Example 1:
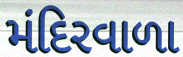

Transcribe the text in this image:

મંદિરવાળા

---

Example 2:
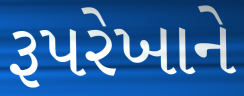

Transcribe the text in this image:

રૂપરેખાને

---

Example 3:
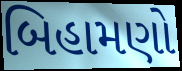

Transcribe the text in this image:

બિહામણો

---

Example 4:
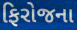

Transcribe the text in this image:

ફિરોજના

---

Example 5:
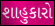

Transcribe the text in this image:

શાહુકારો